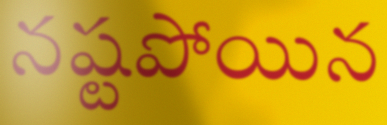
నష్టపోయిన